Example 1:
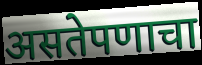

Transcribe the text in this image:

असतेपणाचा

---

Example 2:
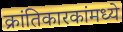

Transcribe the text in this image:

क्रांतिकारकांमध्ये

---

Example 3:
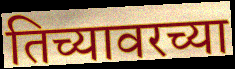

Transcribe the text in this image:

तिच्यावरच्या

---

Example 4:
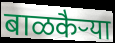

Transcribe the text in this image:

बाळकैऱ्या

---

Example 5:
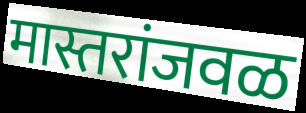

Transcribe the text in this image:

मास्तरांजवळ